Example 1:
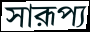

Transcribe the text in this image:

সারূপ্য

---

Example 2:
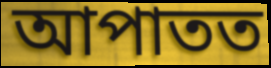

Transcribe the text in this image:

আপাতত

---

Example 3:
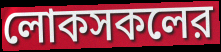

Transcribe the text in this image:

লোকসকলের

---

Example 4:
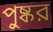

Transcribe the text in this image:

পুষ্কর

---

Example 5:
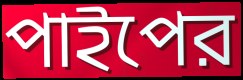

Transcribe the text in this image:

পাইপের